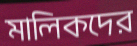
মালিকদের